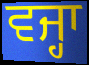
ਵਜ੍ਹਾ